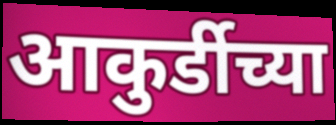
आकुर्डीच्या